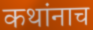
कथांनाच